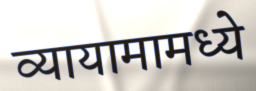
व्यायामामध्ये